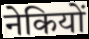
नेकियों